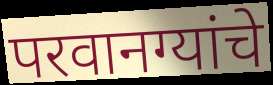
परवानग्यांचे